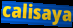
calisaya